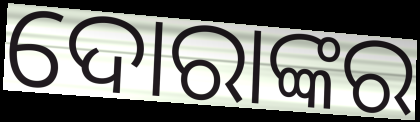
ଦୋରାଙ୍କର